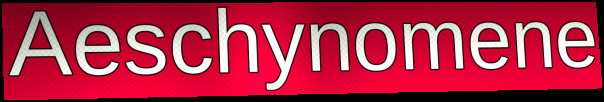
Aeschynomene